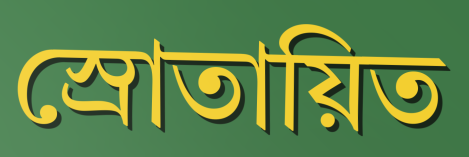
স্রোতায়িত